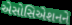
એસોસિએશનને